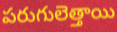
పరుగులెత్తాయి